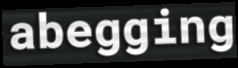
abegging